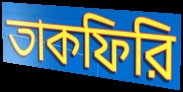
তাকফিরি